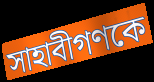
সাহাবীগণকে